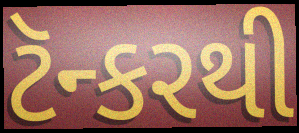
ટૅન્કરથી